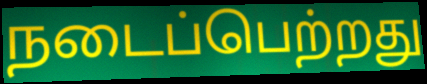
நடைப்பெற்றது